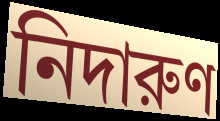
নিদারুণ